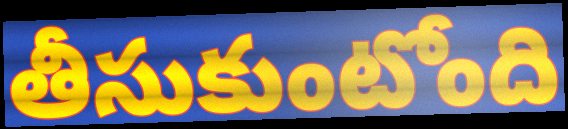
తీసుకుంటోంది